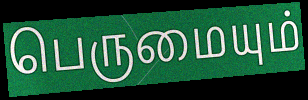
பெருமையும்